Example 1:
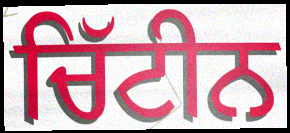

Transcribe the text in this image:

ਚਿੱਟੀਨ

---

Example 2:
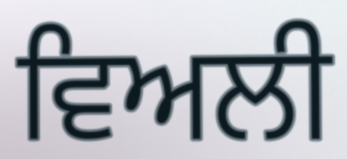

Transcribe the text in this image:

ਵਿਅਲੀ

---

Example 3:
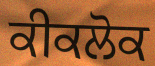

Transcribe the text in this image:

ਕੀਕਲੋਕ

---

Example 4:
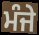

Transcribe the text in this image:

ਮੰਜੇ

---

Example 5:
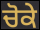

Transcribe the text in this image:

ਚੋਕੇ